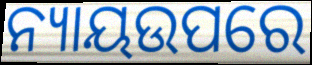
ନ୍ୟାୟଉପରେ